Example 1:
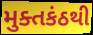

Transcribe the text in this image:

મુક્તકંઠથી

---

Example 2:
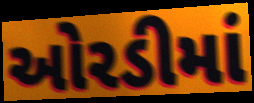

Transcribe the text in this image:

ઓરડીમાં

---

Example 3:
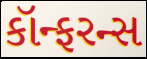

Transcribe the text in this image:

કૉન્ફરન્સ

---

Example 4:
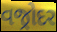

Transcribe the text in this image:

વજ્રોદર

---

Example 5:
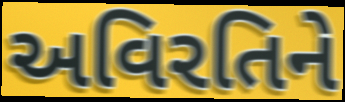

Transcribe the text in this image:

અવિરતિને